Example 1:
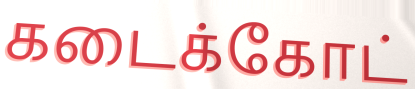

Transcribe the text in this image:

கடைக்கோட்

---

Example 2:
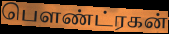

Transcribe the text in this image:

பௌண்ட்ரகன்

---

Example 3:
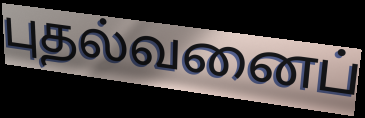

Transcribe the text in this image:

புதல்வனைப்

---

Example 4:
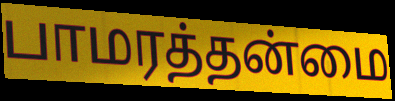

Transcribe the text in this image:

பாமரத்தன்மை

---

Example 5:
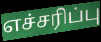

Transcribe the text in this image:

எச்சரிப்பு